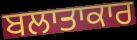
ਬਲਾਤਾਕਾਰ